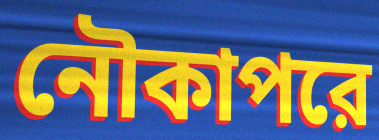
নৌকাপরে